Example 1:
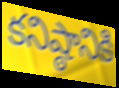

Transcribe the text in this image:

కనిష్ఠానికి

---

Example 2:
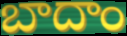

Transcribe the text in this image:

బాదాం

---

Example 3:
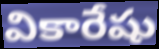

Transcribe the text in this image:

వికారేషు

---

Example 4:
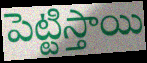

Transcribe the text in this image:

పెట్టిస్తాయి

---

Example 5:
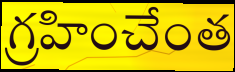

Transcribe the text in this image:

గ్రహించేంత